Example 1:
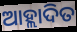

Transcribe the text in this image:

ଆହ୍ଲାଦିତ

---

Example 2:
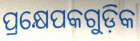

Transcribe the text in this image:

ପ୍ରକ୍ଷେପକଗୁଡ଼ିକ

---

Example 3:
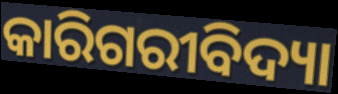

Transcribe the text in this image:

କାରିଗରୀବିଦ୍ୟା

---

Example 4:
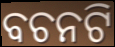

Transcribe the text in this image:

ବଚନଟି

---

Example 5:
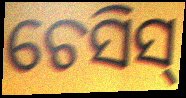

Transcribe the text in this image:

ଚେସିସ୍